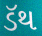
ડૅથ